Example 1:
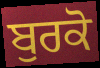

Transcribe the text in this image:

ਬੁਰਕੋ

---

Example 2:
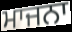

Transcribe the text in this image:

ਮਾਜਨਾ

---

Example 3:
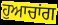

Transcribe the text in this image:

ਹੁਆਚਾਂਗ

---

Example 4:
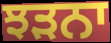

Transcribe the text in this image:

ਝੜਨਾ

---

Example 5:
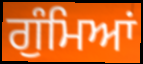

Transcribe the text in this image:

ਗੁੰਮਿਆਂ